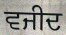
ਵਜੀਦ